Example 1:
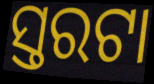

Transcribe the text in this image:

ସ୍ତରଟା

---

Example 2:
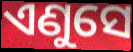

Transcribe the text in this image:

ଏଣୁସେ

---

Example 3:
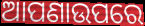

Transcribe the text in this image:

ଆପଣାଉପରେ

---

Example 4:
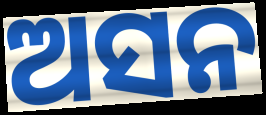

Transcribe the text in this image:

ଅସନ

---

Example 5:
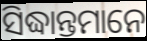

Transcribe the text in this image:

ସିଦ୍ଧାନ୍ତମାନେ